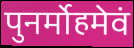
पुनर्मोहमेवं